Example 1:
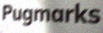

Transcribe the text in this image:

Pugmarks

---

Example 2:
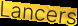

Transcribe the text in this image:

Lancers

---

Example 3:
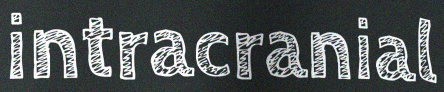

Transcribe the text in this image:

intracranial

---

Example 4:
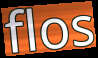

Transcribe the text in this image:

flos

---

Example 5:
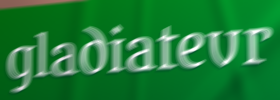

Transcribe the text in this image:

gladiateur